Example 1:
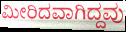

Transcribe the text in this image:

ಮೀರಿದವಾಗಿದ್ದವು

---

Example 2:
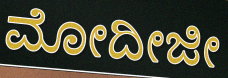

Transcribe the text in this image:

ಮೋದೀಜೀ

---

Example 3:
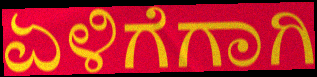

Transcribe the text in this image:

ಏಳಿಗೆಗಾಗಿ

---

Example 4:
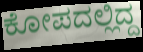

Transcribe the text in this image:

ಕೋಪದಲ್ಲಿದ್ದ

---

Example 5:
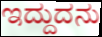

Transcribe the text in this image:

ಇದ್ದುದನು